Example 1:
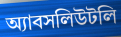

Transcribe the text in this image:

অ্যাবসলিউটলি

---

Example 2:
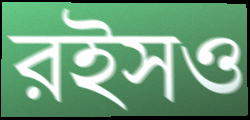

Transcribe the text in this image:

রইসও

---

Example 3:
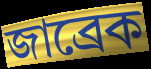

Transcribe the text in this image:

জাব্রেক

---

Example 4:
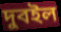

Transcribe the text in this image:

দুবইল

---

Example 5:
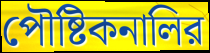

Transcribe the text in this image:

পৌষ্টিকনালির